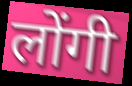
लोंगी